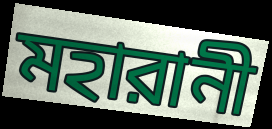
মহারানী